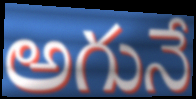
అగునే